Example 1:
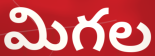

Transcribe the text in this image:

మిగల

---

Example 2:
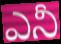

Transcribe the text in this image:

ఎనీ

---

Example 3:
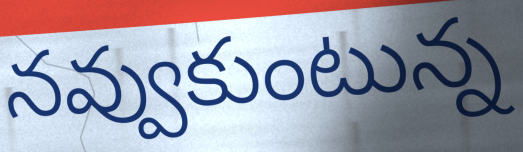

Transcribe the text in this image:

నవ్వుకుంటున్న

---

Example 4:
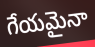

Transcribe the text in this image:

గేయమైనా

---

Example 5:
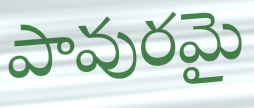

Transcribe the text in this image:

పావురమై